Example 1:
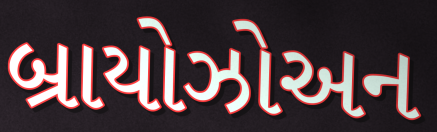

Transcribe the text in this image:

બ્રાયોઝોઅન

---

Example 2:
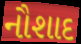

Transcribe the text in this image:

નૌશાદ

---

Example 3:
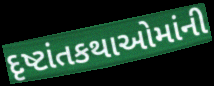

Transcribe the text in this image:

દૃષ્ટાંતકથાઓમાંની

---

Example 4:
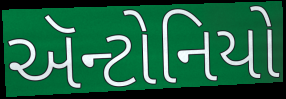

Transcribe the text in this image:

ઍન્ટોનિયો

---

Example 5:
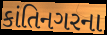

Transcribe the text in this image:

કાંતિનગરના